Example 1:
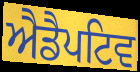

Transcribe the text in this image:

ਐਡੈਪਟਿਵ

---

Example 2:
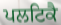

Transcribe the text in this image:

ਪਲਟਿਕੈ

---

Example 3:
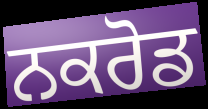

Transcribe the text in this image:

ਨਕਰੋਡ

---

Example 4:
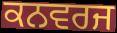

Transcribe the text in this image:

ਕਨਵਰਜ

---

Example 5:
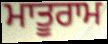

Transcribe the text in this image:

ਮਾਤੂਰਾਮ